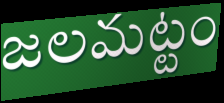
జలమట్టం